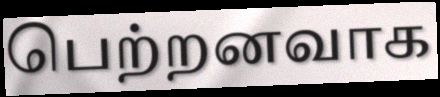
பெற்றனவாக